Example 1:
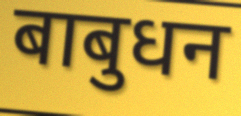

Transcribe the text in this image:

बाबुधन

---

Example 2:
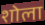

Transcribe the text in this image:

शोला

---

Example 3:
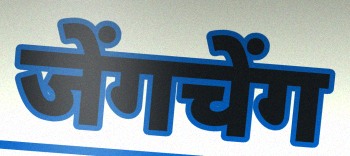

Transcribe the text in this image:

जेंगचेंग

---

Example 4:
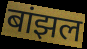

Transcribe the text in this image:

बांझल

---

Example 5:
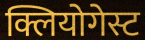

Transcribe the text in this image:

क्लियोगेस्ट